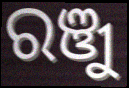
ରଞ୍ଜୁ